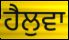
ਹੈਲੁਵਾ